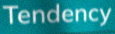
Tendency